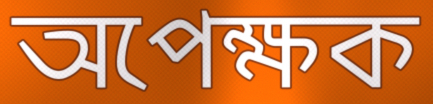
অপেক্ষক